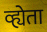
व्ह्येता